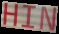
HIN